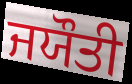
ਜਯੌਤੀ